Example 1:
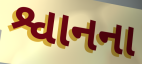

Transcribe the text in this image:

શ્વાનના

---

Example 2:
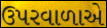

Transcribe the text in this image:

ઉપરવાળાએ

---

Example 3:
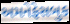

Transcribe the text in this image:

અમનેફેસબુક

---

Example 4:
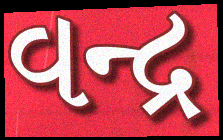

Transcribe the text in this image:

વન્દ્ર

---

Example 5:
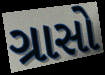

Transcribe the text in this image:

ગ્રાસો